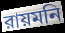
রায়মনি